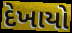
દેખાયો